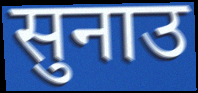
सुनाउ